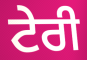
ਟੇਰੀ